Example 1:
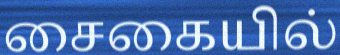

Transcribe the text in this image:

சைகையில்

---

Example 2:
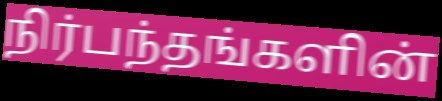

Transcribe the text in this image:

நிர்பந்தங்களின்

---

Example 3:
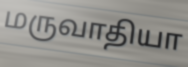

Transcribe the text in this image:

மருவாதியா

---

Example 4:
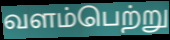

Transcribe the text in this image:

வளம்பெற்று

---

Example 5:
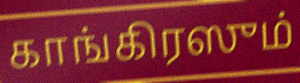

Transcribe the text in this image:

காங்கிரஸும்